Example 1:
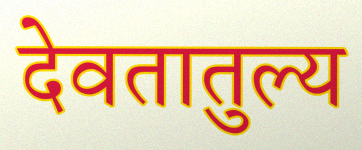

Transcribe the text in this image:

देवतातुल्य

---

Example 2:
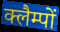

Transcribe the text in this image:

क्लैम्पों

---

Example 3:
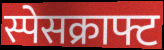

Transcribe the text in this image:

स्‍पेसक्राफ्ट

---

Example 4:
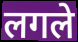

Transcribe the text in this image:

लगले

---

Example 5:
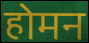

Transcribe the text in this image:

होमन